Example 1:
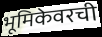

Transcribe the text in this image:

भूमिकेवरची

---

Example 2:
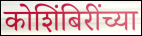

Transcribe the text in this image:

कोशिंबिरींच्या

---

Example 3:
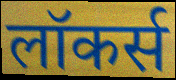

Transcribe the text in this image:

लॉकर्स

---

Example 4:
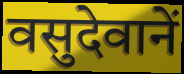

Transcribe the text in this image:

वसुदेवानें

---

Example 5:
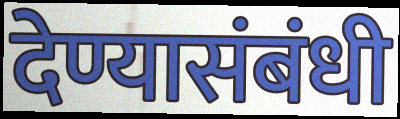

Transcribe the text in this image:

देण्यासंबंधी